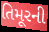
તિમૂરની